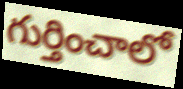
గుర్తించాలో